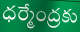
ధర్మేంద్రకు